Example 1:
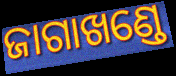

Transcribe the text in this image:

ଜାଗାଖଣ୍ଡେ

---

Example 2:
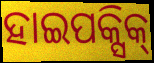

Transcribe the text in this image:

ହାଇପକ୍ସିକ୍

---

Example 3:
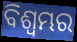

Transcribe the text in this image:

ବିଶ୍ବମ୍ଭର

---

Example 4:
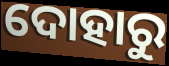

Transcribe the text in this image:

ଦୋହାରୁ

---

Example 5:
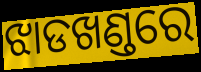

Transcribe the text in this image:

ଝାଡଖଣ୍ଡରେ